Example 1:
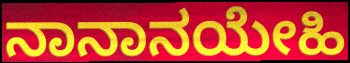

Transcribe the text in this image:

ನಾನಾನಯೇಹಿ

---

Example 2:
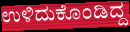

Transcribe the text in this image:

ಉಳಿದುಕೊಂಡಿದ್ದ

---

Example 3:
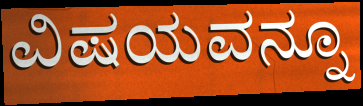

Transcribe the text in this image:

ವಿಷಯವನ್ನೂ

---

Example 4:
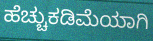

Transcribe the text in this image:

ಹೆಚ್ಚುಕಡಿಮೆಯಾಗಿ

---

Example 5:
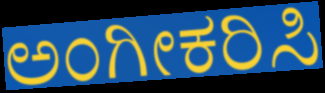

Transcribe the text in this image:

ಅಂಗೀಕರಿಸಿ